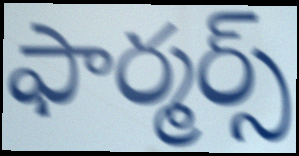
ఫార్మర్స్